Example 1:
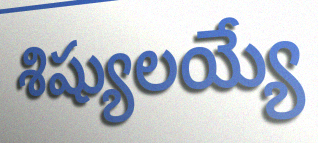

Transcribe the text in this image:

శిష్యులయ్యే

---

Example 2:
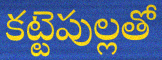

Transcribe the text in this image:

కట్టెపుల్లతో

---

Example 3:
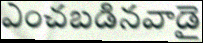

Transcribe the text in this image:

ఎంచబడినవాడై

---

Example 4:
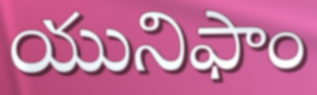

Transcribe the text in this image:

యునిఫాం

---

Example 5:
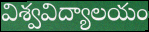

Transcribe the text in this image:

విశ్వవిద్యాలయం